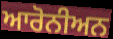
ਆਰੋਨੀਅਨ